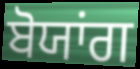
ਬੋਯਾਂਗ